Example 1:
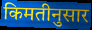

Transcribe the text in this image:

किमतीनुसार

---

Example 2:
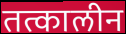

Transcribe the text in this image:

तत्कालीन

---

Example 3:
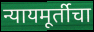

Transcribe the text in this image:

न्यायमूर्तीचा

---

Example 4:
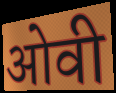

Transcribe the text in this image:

ओवी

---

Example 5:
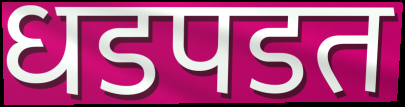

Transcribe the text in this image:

धडपडत